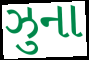
ઝુના